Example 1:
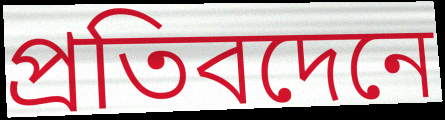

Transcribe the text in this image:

প্রতিবদেনে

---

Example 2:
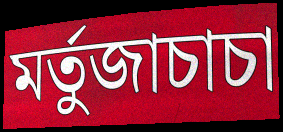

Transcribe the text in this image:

মর্তুজাচাচা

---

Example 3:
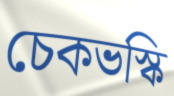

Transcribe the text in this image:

চেকভস্কি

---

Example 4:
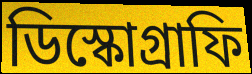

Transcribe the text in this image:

ডিস্কোগ্রাফি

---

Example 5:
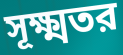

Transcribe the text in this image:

সূক্ষ্মতর